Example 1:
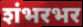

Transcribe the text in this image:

शंभरभर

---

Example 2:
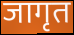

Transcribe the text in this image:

जागृत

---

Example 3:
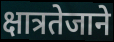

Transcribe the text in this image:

क्षात्रतेजाने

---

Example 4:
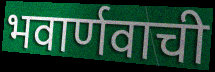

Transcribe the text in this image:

भवार्णवाची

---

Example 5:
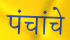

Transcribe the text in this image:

पंचांचे